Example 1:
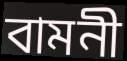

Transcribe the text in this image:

বামনী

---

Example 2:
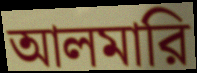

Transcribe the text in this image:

আলমারি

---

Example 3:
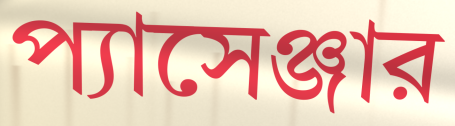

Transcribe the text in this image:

প্যাসেঞ্জার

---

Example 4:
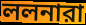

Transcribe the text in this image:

ললনারা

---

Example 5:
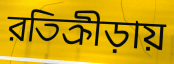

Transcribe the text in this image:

রতিক্রীড়ায়